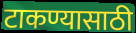
टाकण्यासाठी